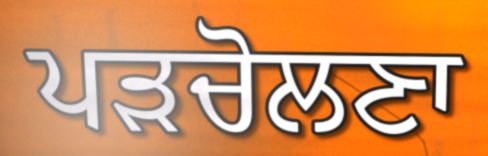
ਪੜਚੋਲਣਾ